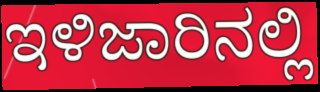
ಇಳಿಜಾರಿನಲ್ಲಿ